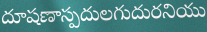
దూషణాస్పదులగుదురనియు